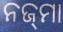
ନଜ୍‌ମା